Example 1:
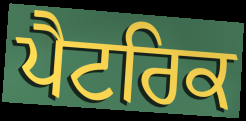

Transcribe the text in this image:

ਪੈਟਰਿਕ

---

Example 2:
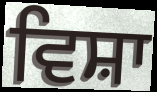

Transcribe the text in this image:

ਵਿਸ਼ਾ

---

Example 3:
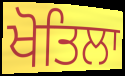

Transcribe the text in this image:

ਖੋਤਿਲਾ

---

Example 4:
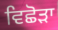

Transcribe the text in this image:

ਵਿਛੋੜਾ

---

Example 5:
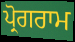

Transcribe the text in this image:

ਪ੍ਰੋਗਰਾਮ